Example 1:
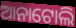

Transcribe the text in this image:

ଆନାଟୋଲି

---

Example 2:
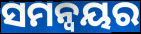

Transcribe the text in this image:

ସମନ୍ଵୟର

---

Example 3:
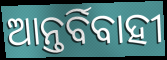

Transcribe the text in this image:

ଆନ୍ତର୍ବିବାହୀ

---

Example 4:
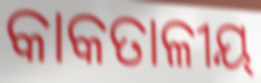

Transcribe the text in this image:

କାକତାଳୀୟ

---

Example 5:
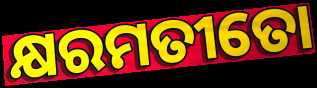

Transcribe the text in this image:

କ୍ଷରମତୀତୋ